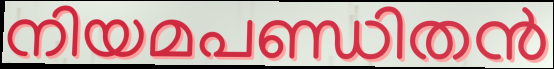
നിയമപണ്ഡിതൻ